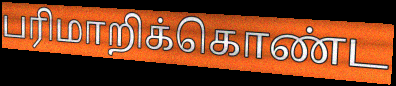
பரிமாறிக்கொண்ட